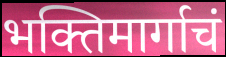
भक्तिमार्गाचं